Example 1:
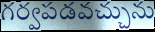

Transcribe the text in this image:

గర్వపడవచ్చును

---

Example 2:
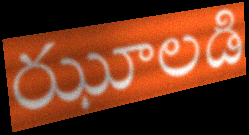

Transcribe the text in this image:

ఝూలడి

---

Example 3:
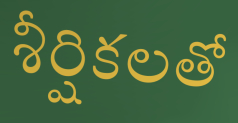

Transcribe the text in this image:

శీర్షికలతో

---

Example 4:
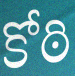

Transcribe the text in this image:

కోఠి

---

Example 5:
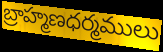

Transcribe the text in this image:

బ్రాహ్మణధర్మములు